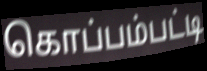
கொப்பம்பட்டி